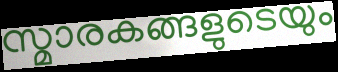
സ്മാരകങ്ങളുടെയും